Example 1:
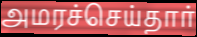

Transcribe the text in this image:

அமரச்செய்தார்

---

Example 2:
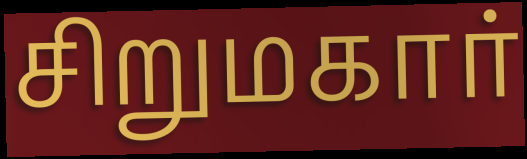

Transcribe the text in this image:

சிறுமகார்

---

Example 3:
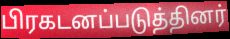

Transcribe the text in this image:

பிரகடனப்படுத்தினர்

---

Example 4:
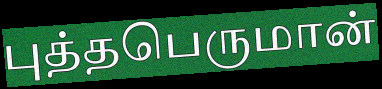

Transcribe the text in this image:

புத்தபெருமான்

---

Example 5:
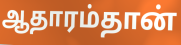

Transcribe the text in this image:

ஆதாரம்தான்